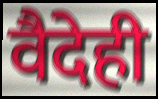
वैदेही